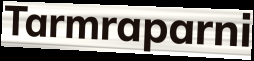
Tarmraparni